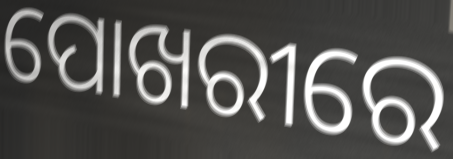
ପୋଖରୀରେ